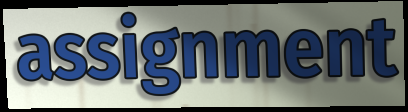
assignment